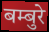
बम्बुरे